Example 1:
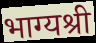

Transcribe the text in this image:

भाग्यश्री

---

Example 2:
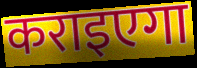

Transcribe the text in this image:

कराइएगा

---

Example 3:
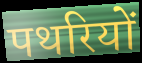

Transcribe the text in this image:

पथरियों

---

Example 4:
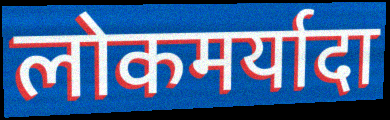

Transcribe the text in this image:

लोकमर्यादा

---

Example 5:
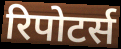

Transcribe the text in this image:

रिपोटर्स